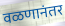
वळणानंतर